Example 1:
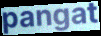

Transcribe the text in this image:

pangat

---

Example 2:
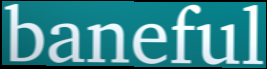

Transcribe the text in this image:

baneful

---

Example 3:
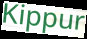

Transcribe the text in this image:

Kippur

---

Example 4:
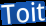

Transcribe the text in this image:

Toit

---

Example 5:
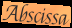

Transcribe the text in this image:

Abscissa